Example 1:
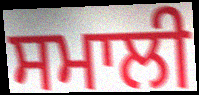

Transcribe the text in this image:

ਸਮਾਲੀ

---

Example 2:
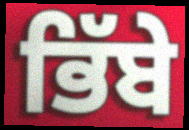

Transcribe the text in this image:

ਭਿੱਬੇ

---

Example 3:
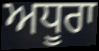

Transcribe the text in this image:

ਅਧੂਰਾ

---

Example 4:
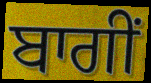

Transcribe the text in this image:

ਬਾਗੀਂ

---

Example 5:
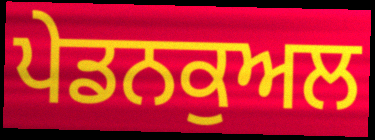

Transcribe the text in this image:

ਪੇਡਨਕੁਅਲ